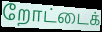
றோட்டைக்